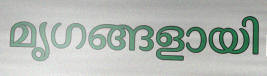
മൃഗങ്ങളായി